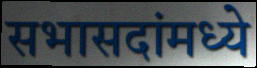
सभासदांमध्ये